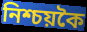
নিশ্চয়কৈ